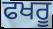
ਫਖਰੂ